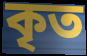
কৃত